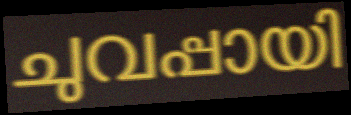
ചുവപ്പായി